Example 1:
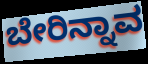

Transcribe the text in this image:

ಬೇರಿನ್ನಾವ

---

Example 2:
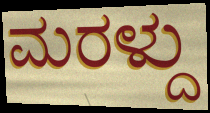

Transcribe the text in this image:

ಮರಳ್ದು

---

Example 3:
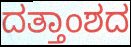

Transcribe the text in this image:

ದತ್ತಾಂಶದ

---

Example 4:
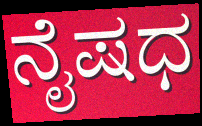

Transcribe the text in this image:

ನೈಷಧ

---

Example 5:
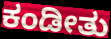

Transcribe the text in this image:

ಕಂಡೀತು